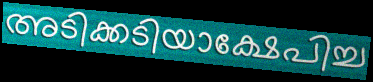
അടിക്കടിയാക്ഷേപിച്ച